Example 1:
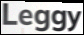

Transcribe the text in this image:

Leggy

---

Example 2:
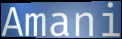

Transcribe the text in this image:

Amani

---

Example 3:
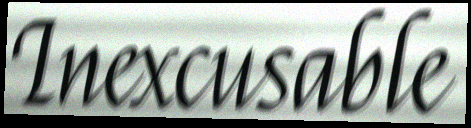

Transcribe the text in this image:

Inexcusable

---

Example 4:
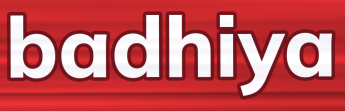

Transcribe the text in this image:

badhiya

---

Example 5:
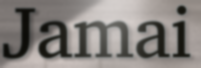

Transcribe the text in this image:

Jamai